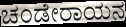
ಚಂಡೇರಾಯನ